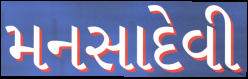
મનસાદેવી